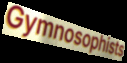
Gymnosophists